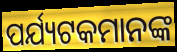
ପର୍ଯ୍ୟଟକମାନଙ୍କ